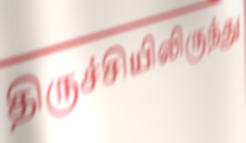
திருச்சியிலிருந்து